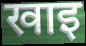
खाइ